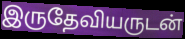
இருதேவியருடன்